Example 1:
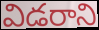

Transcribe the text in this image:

విడరాని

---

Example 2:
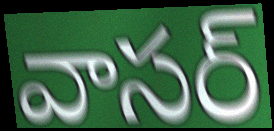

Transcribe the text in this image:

వాసర్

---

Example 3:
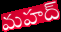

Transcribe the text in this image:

మహద్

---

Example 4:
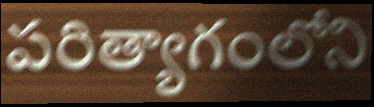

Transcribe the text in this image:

పరిత్యాగంలోని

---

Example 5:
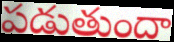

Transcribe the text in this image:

పడుతుందా